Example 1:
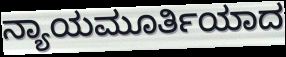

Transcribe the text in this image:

ನ್ಯಾಯಮೂರ್ತಿಯಾದ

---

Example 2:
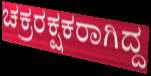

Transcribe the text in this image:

ಚಕ್ರರಕ್ಷಕರಾಗಿದ್ದ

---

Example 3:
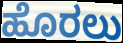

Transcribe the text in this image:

ಹೊರಲು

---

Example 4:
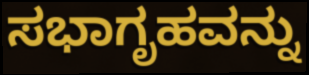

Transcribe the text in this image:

ಸಭಾಗೃಹವನ್ನು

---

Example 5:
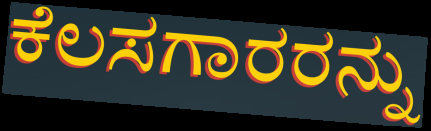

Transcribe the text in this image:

ಕೆಲಸಗಾರರನ್ನು